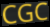
CGC